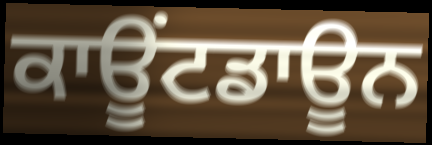
ਕਾਊਂਟਡਾਊਨ